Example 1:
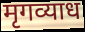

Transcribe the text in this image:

मृगव्याध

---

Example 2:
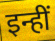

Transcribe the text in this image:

इन्हीं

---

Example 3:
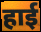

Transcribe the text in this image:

हाई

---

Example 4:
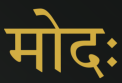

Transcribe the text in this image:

मोदः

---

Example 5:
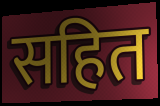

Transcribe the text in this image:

सहित